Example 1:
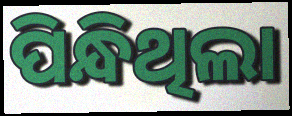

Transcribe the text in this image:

ପିନ୍ଧିଥିଲା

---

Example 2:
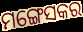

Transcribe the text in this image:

ମଙ୍ଗେସକର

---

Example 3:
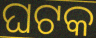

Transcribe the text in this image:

ଘଟକ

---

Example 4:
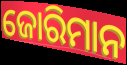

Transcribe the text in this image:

ଜୋରିମାନ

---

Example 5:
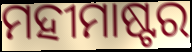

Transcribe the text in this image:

ମହୀମାଷ୍ଟର